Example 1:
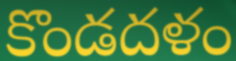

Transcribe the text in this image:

కొండదళం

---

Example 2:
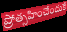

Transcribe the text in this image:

ప్రోత్సహించేందుకే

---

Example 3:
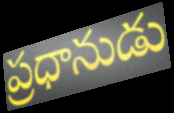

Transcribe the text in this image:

ప్రధానుడు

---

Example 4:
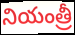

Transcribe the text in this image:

నియంత్రీ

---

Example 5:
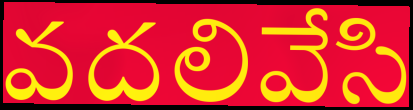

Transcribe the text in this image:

వదలివేసి